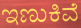
ಇಣುಕಿವೆ